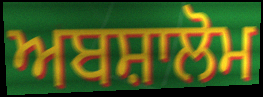
ਅਬਸ਼ਾਲੋਮ